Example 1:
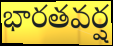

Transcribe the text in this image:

భారతవర్ష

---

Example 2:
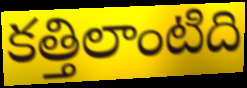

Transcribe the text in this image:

కత్తిలాంటిది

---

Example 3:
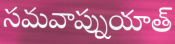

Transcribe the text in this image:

సమవాప్నుయాత్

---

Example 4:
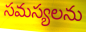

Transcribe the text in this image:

సమస్యలను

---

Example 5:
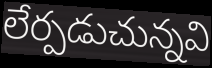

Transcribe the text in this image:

లేర్పడుచున్నవి